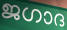
ജഗാദ